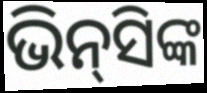
ଭିନ୍‍ସିଙ୍କ